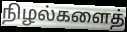
நிழல்களைத்